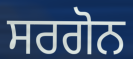
ਸਰਗੋਨ